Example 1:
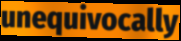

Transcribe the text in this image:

unequivocally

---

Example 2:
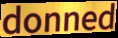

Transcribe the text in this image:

donned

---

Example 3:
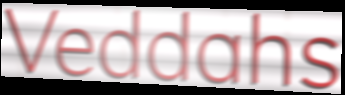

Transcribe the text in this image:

Veddahs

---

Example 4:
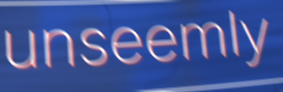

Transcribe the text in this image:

unseemly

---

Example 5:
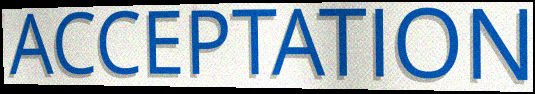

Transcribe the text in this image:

ACCEPTATION